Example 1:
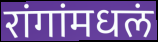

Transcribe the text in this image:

रांगांमधलं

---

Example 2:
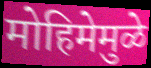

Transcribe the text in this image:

मोहिमेमुळे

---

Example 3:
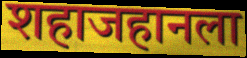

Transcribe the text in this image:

शहाजहानला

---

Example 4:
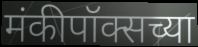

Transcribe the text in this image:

मंकीपॉक्सच्या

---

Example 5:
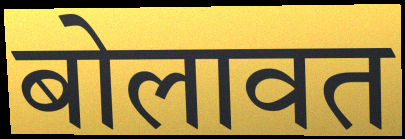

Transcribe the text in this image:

बोलावत